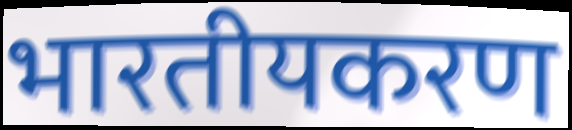
भारतीयकरण